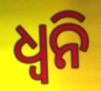
ଧ୍ୱନି